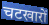
चटखारों